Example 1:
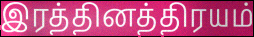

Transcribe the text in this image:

இரத்தினத்திரயம்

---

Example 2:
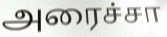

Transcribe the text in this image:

அரைச்சா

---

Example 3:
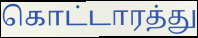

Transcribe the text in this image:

கொட்டாரத்து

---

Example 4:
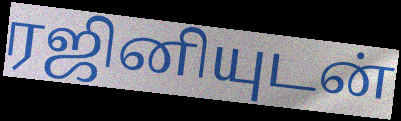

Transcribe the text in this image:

ரஜினியுடன்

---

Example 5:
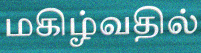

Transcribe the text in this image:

மகிழ்வதில்